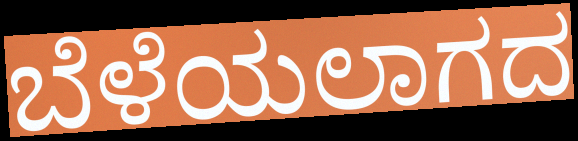
ಬೆಳೆಯಲಾಗದ